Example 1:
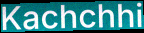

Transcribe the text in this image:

Kachchhi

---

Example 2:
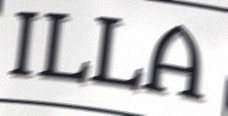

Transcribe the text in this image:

ILLA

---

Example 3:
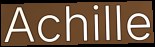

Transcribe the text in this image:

Achille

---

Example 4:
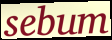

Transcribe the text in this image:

sebum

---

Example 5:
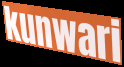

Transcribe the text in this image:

kunwari